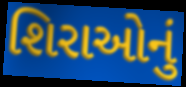
શિરાઓનું